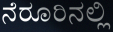
ನೆರೂರಿನಲ್ಲಿ